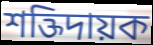
শক্তিদায়ক